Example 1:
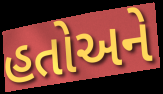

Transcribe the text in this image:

હતોઅને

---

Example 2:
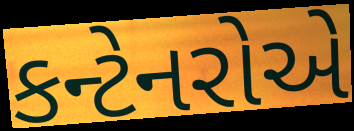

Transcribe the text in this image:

કન્ટેનરોએ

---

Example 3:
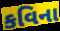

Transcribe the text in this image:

કવિના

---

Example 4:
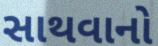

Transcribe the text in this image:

સાથવાનો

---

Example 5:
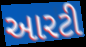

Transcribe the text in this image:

આરટી